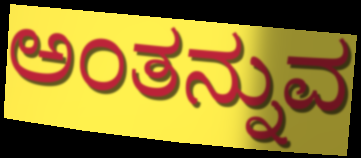
ಅಂತನ್ನುವ